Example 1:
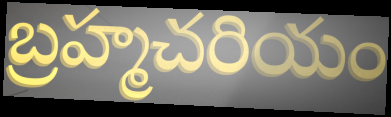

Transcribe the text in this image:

బ్రహ్మచరియం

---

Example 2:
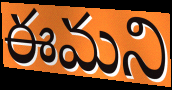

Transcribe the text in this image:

ఈమని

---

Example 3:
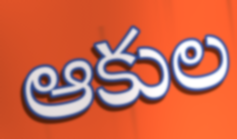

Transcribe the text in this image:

ఆకుల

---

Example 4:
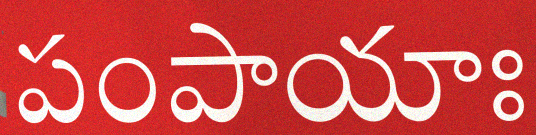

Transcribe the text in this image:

పంపాయాః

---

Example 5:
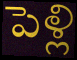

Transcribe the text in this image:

పెళ్లి